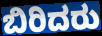
ಬಿರಿದರು